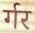
र्गर